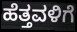
ಹೆತ್ತವಳಿಗೆ